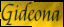
Gideona